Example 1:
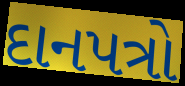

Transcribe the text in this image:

દાનપત્રો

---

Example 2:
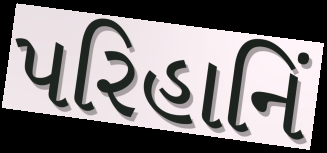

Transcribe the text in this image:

પરિહાનિં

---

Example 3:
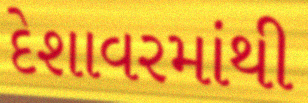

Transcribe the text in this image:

દેશાવરમાંથી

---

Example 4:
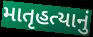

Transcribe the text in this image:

માતૃહત્યાનું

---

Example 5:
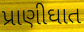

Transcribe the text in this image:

પ્રાણીઘાત